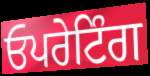
ਓਪਰੇਟਿੰਗ